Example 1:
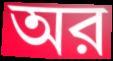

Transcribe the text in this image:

অর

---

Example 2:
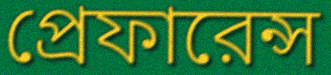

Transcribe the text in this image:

প্রেফারেন্স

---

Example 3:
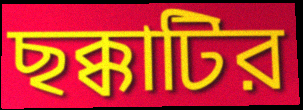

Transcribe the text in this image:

ছক্কাটির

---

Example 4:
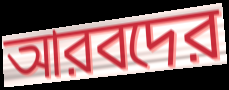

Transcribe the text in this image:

আরবদের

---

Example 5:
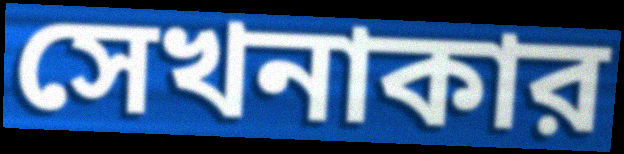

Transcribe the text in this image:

সেখনাকার